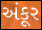
અંકૂર